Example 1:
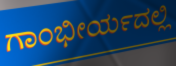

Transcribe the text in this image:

ಗಾಂಭೀರ್ಯದಲ್ಲಿ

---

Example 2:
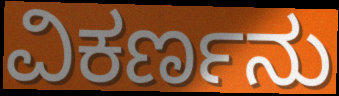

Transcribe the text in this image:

ವಿಕರ್ಣನು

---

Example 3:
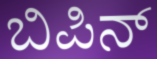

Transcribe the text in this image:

ಬಿಪಿನ್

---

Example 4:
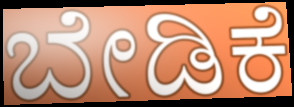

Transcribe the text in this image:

ಬೇಡಿಕೆ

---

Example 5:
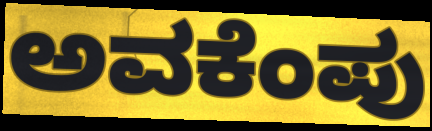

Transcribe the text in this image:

ಅವಕೆಂಪು